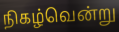
நிகழ்வென்று